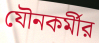
যৌনকর্মীর